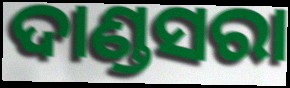
ଦାଣ୍ଡସରା